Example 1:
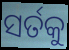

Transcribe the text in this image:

ସର୍ତକୁ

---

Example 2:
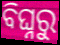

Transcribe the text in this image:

ବିଘ୍ନରୁ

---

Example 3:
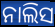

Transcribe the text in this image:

ନାଲିସ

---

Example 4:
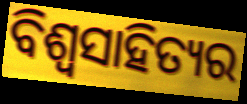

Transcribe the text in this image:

ବିଶ୍ୱସାହିତ୍ୟର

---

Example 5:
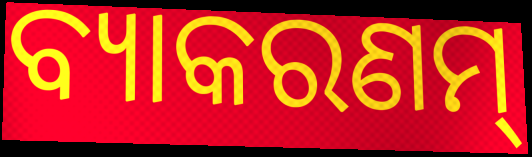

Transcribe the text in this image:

ବ୍ୟାକରଣମ୍